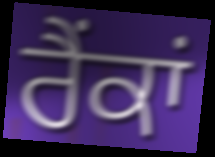
ਰੈਂਕਾਂ